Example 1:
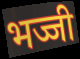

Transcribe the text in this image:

भज्जी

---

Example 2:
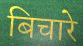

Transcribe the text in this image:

बिचारे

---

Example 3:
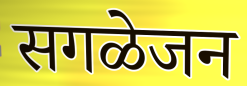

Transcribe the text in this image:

सगळेजन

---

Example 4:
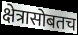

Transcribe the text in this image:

क्षेत्रासोबतच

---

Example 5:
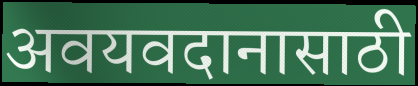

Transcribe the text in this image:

अवयवदानासाठी